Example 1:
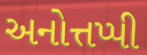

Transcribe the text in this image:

અનોત્તપ્પી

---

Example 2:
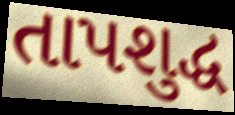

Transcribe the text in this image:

તાપશુદ્ધ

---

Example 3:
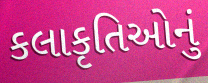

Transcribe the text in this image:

કલાકૃતિઓનું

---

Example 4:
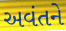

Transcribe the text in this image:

અવંતને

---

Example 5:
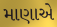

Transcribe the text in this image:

માણાએ